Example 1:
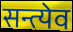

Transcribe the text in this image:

सन्त्येव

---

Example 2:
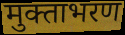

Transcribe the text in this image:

मुक्ताभरण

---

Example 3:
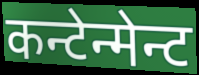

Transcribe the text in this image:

कन्टेन्मेन्ट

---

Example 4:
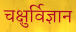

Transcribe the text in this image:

चक्षुर्विज्ञान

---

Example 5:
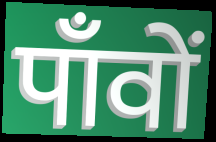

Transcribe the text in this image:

पाँवों